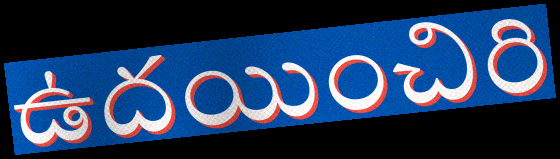
ఉదయించిరి